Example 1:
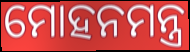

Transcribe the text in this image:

ମୋହନମନ୍ତ୍ର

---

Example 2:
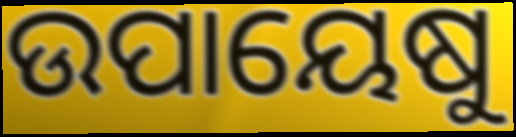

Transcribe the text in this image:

ଉପାୟେଷୁ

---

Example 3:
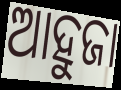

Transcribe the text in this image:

ଆହୁଜା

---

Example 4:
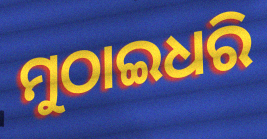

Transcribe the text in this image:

ମୁଠାଇଧରି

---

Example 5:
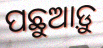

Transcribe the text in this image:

ପଛୁଆଡ଼ୁ